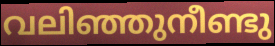
വലിഞ്ഞുനീണ്ടു